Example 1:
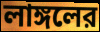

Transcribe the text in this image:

লাঙ্গলের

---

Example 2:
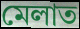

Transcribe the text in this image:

মেলাত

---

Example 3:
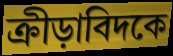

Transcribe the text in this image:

ক্রীড়াবিদকে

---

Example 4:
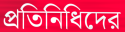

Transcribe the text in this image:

প্রতিনিধিদের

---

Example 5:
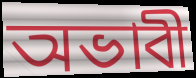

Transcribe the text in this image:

অভাবী